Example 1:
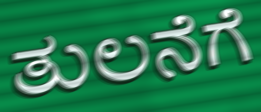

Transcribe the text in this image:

ತುಲನೆಗೆ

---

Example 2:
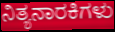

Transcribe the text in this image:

ನಿತ್ಯನಾರಕಿಗಳು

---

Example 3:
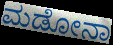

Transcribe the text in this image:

ಮಡೋನಾ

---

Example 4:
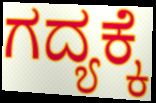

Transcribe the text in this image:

ಗದ್ಯಕ್ಕೆ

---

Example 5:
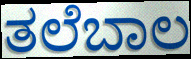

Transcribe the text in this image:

ತಲೆಬಾಲ